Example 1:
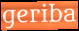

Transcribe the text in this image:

geriba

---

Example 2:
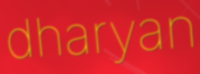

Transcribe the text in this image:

dharyan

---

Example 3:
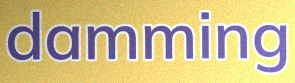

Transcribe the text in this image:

damming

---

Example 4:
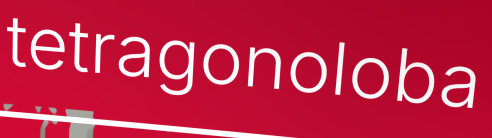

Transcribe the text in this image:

tetragonoloba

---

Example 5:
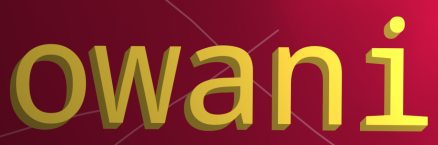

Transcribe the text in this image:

owani